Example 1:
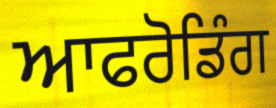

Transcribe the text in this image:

ਆਫਰੋਡਿੰਗ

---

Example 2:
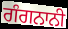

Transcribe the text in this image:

ਗੰਗਨਾਨੀ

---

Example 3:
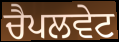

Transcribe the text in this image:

ਚੈਪਲਵੇਟ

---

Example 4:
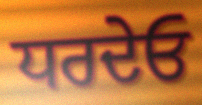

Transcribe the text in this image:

ਧਰਦੇਓ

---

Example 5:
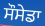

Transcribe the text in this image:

ਸੌਸੇਡਾ